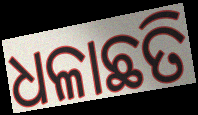
ଧଳାଛତି